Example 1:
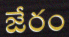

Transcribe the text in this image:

జేరం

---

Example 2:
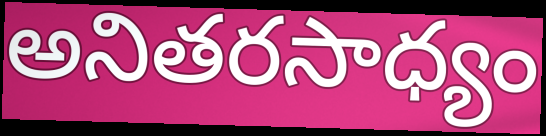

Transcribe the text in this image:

అనితరసాధ్యం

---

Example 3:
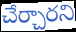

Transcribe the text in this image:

చేర్చారని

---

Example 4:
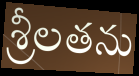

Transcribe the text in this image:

శ్రీలతను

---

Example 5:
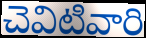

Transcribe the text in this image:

చెవిటివారి